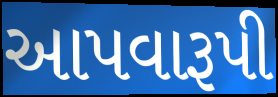
આપવારૂપી